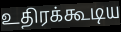
உதிரக்கூடிய